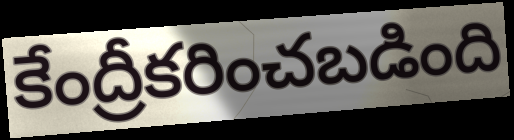
కేంద్రీకరించబడింది